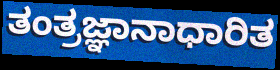
ತಂತ್ರಜ್ಞಾನಾಧಾರಿತ